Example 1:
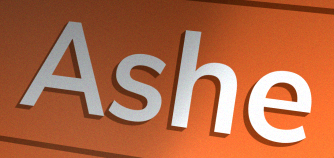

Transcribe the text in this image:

Ashe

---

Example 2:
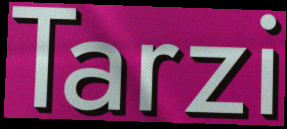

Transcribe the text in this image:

Tarzi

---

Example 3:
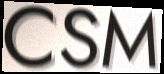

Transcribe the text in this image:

CSM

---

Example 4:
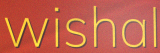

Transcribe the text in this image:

wishal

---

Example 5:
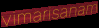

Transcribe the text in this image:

vimarisanam